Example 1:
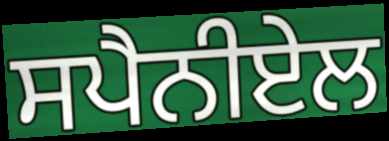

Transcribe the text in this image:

ਸਪੈਨੀਏਲ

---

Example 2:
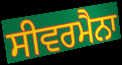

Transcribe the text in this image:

ਸੀਵਰਮੈਨਾ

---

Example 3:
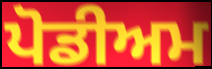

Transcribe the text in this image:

ਪੋਡੀਅਮ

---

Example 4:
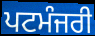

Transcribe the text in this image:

ਪਟਮੰਜਰੀ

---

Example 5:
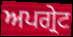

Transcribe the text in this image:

ਅਪਗ੍ਰੇਟ